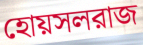
হোয়সলরাজ